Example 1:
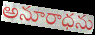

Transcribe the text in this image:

అనూరాధను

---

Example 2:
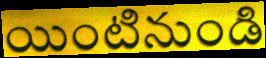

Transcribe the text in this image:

యింటినుండి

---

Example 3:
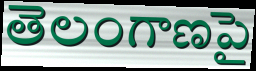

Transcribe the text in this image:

తెలంగాణపై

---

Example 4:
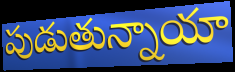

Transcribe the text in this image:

పుడుతున్నాయా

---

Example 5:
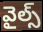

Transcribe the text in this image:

వైల్స్